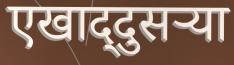
एखाद्‌दुसऱ्या